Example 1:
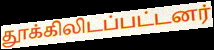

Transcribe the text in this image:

தூக்கிலிடப்பட்டனர்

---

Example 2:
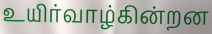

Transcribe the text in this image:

உயிர்வாழ்கின்றன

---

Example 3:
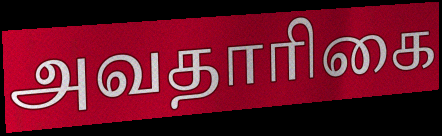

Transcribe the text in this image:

அவதாரிகை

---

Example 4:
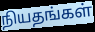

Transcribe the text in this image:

நியதங்கள்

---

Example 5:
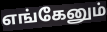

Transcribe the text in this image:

எங்கேனும்